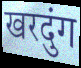
खरदुंग